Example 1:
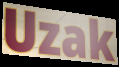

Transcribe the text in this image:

Uzak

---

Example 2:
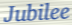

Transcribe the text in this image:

Jubilee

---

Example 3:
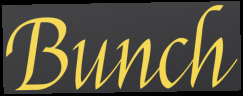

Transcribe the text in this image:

Bunch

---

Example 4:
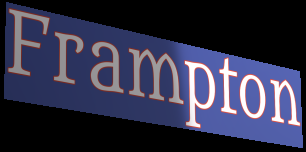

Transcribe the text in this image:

Frampton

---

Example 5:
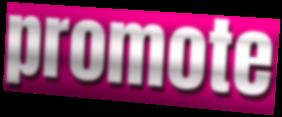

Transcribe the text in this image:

promote